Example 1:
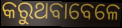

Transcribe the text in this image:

କରୁଥବାବେଳେ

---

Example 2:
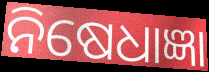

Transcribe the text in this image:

ନିଷେଧାଜ୍ଞା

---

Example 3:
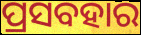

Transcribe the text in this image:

ପ୍ରସବହାର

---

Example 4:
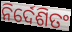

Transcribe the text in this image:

ନିର୍ଦେଶିତଂ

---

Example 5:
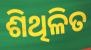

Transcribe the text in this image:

ଶିଥିଳିତ